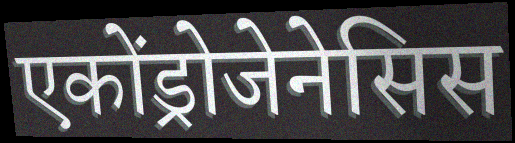
एकोंड्रोजेनेसिस